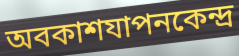
অবকাশযাপনকেন্দ্র